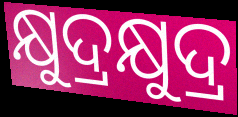
କ୍ଷୁଦ୍ରକ୍ଷୁଦ୍ର